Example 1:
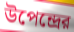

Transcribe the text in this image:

উপেন্দ্রের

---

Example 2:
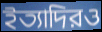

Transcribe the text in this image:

ইত্যাদিরও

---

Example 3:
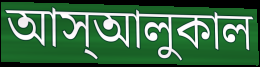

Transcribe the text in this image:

আস্আলুকাল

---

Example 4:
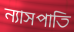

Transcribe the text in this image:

ন্যাসপাতি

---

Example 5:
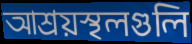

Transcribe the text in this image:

আশ্রয়স্থলগুলি